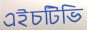
এইচটিভি